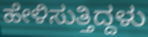
ಹೇಳಿಸುತ್ತಿದ್ದಳು